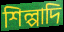
শিল্পাদি